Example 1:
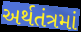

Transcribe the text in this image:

અર્થતંત્રમાં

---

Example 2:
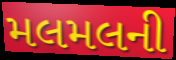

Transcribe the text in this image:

મલમલની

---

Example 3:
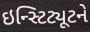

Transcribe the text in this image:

ઇન્સ્ટિટ્યૂટને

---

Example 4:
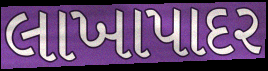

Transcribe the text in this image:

લાખાપાદર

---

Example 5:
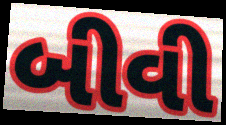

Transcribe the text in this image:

બીવી